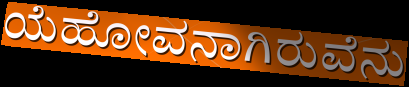
ಯೆಹೋವನಾಗಿರುವೆನು